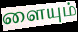
ளையும்